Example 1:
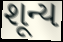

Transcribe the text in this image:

શૂન્ય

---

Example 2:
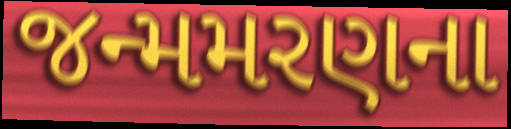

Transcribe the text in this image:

જન્મમરણના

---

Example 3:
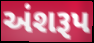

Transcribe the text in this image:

અંશરૂપ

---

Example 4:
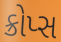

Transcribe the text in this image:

ક્રોપ્સ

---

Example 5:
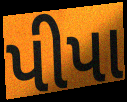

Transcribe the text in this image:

પીપા